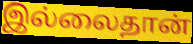
இல்லைதான்